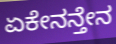
ಏಕೇನನ್ತೇನ